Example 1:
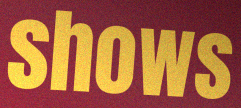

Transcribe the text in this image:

shows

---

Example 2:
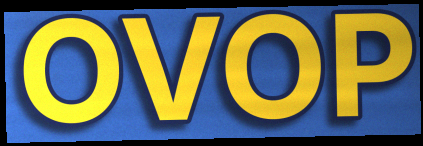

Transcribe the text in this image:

OVOP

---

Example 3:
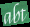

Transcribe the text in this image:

abt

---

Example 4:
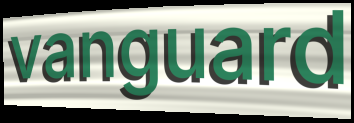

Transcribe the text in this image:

vanguard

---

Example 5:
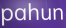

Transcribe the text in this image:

pahun